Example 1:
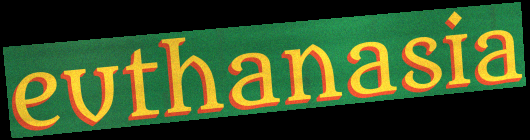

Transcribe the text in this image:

euthanasia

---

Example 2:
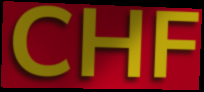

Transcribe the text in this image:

CHF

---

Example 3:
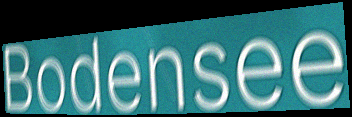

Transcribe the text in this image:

Bodensee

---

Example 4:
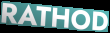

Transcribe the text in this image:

RATHOD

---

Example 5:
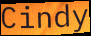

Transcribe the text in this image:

Cindy